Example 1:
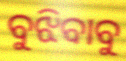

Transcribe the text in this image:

ବୁଝିବାବୁ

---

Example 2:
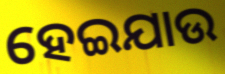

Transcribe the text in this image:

ହେଇଯାଉ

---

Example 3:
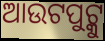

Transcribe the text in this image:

ଆଉଟପୁଟ୍କୁ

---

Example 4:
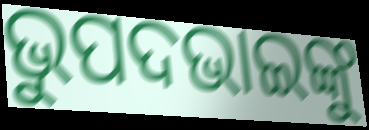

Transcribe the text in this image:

ଭୁପଦଭାଇଙ୍କୁ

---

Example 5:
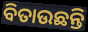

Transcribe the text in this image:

ବିତାଉଛନ୍ତି